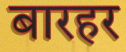
बारहर